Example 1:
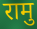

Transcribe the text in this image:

रामु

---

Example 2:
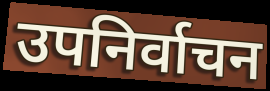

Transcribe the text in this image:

उपनिर्वाचन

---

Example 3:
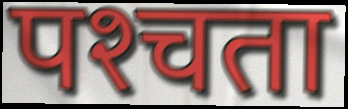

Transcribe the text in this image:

पश्चता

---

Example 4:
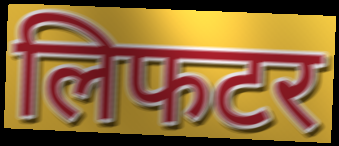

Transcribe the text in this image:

लिफटर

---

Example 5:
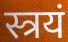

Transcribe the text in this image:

स्त्रयं